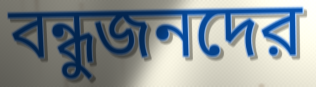
বন্ধুজনদের